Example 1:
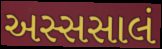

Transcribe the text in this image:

અસ્સસાલં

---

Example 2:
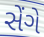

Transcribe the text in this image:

સેંગે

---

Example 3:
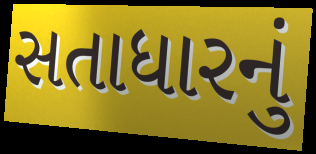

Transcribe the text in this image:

સતાધારનું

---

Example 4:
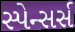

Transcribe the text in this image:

સ્પેન્સર્સ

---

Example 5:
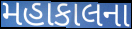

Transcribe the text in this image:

મહાકાલના